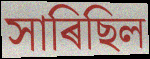
সাৰিছিল